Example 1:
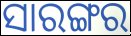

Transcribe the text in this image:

ସାରଙ୍ଗର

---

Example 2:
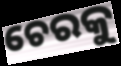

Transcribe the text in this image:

ଚେରକୁ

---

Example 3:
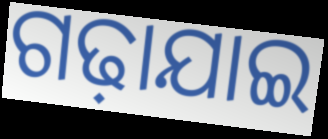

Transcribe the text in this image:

ଗଢ଼ାଯାଇ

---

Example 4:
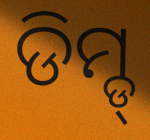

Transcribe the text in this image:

ଡିମ୍ଡ୍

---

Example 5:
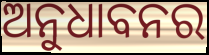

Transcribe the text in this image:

ଅନୁଧାବନର